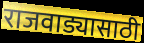
राजवाड्यासाठी